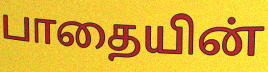
பாதையின்